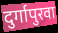
दुर्गापुरवा